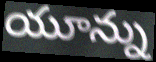
యూన్ను